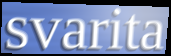
svarita